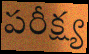
పరీక్ష్య